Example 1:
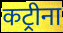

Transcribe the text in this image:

कट्रीना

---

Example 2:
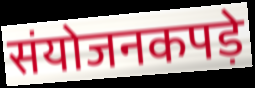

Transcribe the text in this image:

संयोजनकपड़े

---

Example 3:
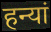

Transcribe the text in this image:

हन्यां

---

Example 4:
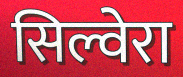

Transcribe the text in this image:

सिल्वेरा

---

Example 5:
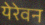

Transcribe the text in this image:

येरेवन